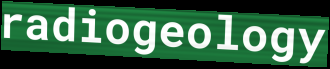
radiogeology